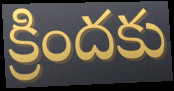
క్రిందకు